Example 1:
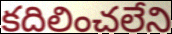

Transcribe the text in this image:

కదిలించలేని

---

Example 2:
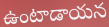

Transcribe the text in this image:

ఉంటాడాయన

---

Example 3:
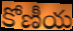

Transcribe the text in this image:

కోణీయ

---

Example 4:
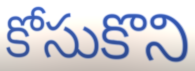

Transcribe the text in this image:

కోసుకొని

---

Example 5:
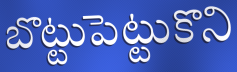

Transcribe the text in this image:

బొట్టుపెట్టుకొని